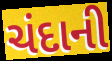
ચંદાની